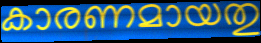
കാരണമായതു